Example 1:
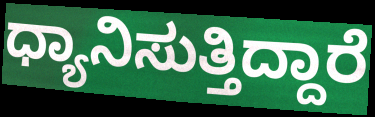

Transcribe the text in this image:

ಧ್ಯಾನಿಸುತ್ತಿದ್ದಾರೆ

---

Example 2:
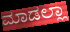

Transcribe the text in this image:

ಮಾಡಲ್ಲಾ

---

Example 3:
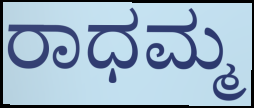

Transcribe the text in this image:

ರಾಧಮ್ಮ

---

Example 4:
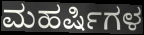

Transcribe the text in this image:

ಮಹರ್ಷಿಗಳ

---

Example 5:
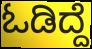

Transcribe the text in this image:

ಓಡಿದ್ದೆ